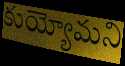
కుయ్యోమని